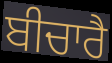
ਬੀਚਾਰੈ